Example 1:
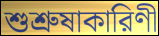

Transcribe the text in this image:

শুশ্রুষাকারিণী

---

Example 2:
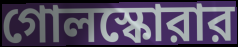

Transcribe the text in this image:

গোলস্কোরার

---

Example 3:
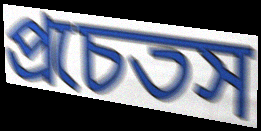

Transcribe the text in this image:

প্রচেতস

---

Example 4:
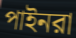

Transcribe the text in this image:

পাইনরা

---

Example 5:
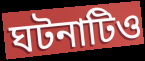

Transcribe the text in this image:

ঘটনাটিও